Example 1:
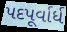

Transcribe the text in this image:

પદપૂર્વાર્ધ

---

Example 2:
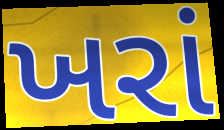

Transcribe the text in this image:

ખરાં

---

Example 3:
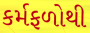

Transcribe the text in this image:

કર્મફળોથી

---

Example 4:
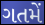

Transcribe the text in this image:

ગતમેં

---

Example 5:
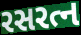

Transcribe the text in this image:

રસરત્ન